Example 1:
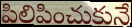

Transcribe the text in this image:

పిలిపించుకునే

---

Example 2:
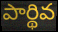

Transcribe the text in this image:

పార్థివ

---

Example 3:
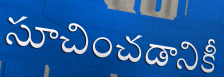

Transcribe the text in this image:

సూచించడానికీ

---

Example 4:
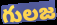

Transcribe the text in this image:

గులజ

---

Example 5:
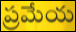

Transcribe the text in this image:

ప్రమేయ